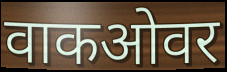
वाकओवर